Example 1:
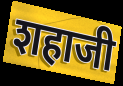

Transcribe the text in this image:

शहाजी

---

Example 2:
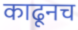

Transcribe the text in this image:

काढूनच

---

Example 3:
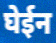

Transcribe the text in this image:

घेईन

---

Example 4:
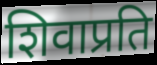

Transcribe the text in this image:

शिवाप्रति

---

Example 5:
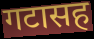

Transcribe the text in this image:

गटासह